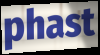
phast